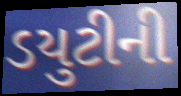
ડયુટીની